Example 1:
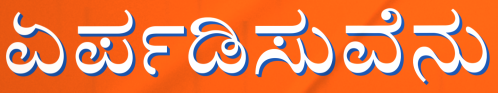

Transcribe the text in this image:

ಏರ್ಪಡಿಸುವೆನು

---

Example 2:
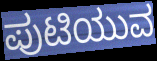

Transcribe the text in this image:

ಪುಟಿಯುವ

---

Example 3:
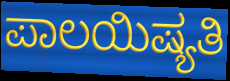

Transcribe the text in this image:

ಪಾಲಯಿಷ್ಯತಿ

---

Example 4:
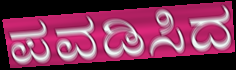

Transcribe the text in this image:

ಪವಡಿಸಿದ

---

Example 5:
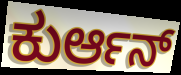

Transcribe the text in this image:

ಕುರ್ಆನ್